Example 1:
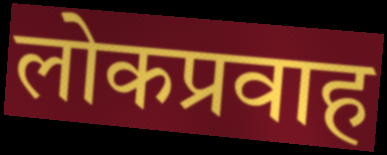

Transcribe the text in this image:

लोकप्रवाह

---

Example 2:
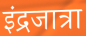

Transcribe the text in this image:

इंद्रजात्रा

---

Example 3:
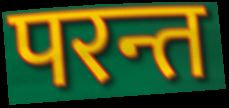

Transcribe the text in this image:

परन्त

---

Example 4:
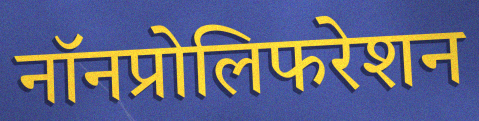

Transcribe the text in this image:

नॉनप्रोलिफरेशन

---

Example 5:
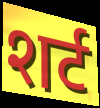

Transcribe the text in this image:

शर्ट